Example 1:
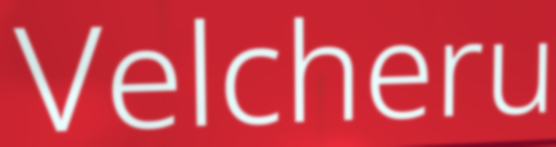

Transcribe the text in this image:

Velcheru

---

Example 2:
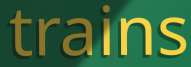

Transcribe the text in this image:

trains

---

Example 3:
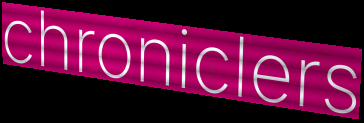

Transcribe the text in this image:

chroniclers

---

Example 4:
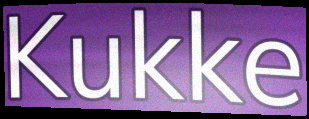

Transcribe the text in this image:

Kukke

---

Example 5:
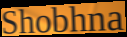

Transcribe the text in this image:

Shobhna